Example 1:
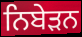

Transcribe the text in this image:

ਨਿਬੇੜਨ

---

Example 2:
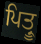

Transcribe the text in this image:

ਪਿਤ੍ਰੂ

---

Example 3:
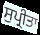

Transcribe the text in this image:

ਸੁਪ੍ਰੀਤਾ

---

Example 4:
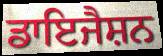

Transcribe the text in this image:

ਡਾਇਜੈਸ਼ਨ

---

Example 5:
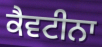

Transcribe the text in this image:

ਕੈਵਟੀਨਾ